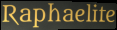
Raphaelite